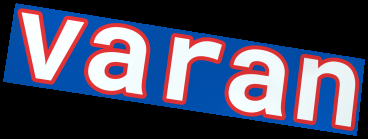
varan